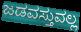
ಜಡವಸ್ತುವಲ್ಲ